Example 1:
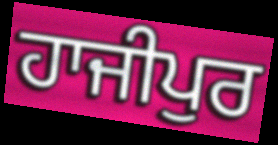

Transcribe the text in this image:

ਹਾਜੀਪੁਰ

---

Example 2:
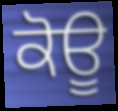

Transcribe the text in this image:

ਕੋਊ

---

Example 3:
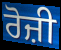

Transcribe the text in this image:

ਰੋਜ਼ੀ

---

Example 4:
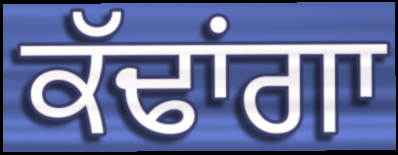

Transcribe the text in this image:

ਕੱਢਾਂਗਾ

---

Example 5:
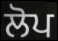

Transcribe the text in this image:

ਲੋਪ